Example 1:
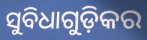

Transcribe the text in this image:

ସୁବିଧାଗୁଡ଼ିକର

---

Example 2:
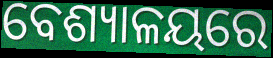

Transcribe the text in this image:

ବେଶ୍ୟାଳୟରେ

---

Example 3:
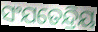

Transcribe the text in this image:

ସଂଯତେନ୍ଦ୍ରିୟ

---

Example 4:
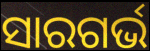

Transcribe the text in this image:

ସାରଗର୍ଭ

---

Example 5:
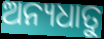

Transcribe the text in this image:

ଅନ୍ୟଧାତୁ